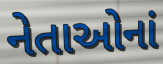
નેતાઓનાં